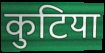
कुटिया